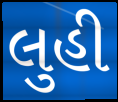
લુહી